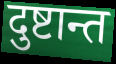
दुष्टान्त